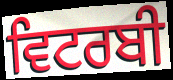
ਵਿਟਰਬੀ